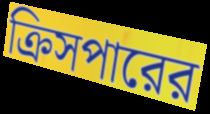
ক্রিসপারের